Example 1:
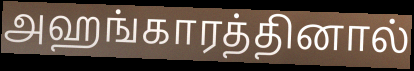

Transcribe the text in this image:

அஹங்காரத்தினால்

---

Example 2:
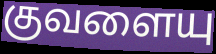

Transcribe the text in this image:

குவளையு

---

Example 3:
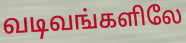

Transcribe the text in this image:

வடிவங்களிலே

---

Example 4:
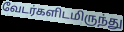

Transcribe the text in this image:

வேடர்களிடமிருந்து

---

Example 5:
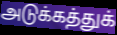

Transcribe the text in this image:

அடுக்கத்துக்